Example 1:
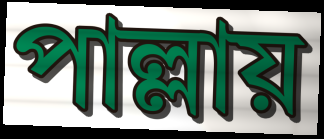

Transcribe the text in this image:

পাল্লায়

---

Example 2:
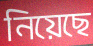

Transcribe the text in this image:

নিয়েছে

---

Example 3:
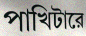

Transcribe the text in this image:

পাখিটারে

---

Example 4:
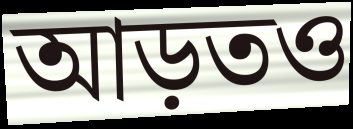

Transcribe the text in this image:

আড়তও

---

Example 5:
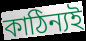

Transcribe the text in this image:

কাঠিন্যই